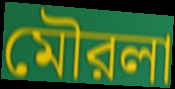
মৌরলা